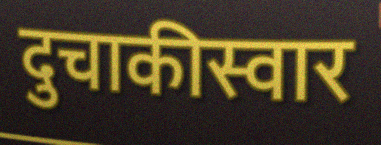
दुचाकीस्वार